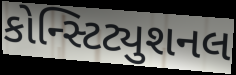
કોન્સ્ટિટ્યુશનલ